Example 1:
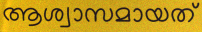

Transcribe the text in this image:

ആശ്വാസമായത്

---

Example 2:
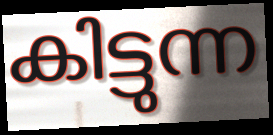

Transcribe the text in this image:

കിട്ടുന്ന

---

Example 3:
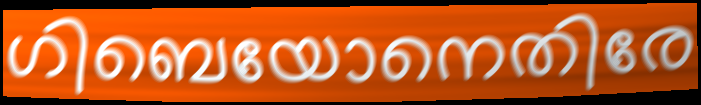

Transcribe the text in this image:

ഗിബെയോനെതിരേ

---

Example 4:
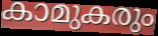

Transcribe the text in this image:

കാമുകരും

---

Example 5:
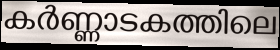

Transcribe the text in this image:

കർണ്ണാടകത്തിലെ